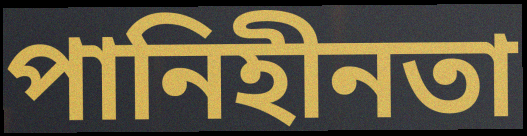
পানিহীনতা